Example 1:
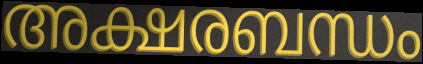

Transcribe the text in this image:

അക്ഷരബന്ധം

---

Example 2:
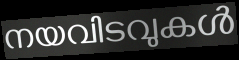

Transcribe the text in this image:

നയവിടവുകൾ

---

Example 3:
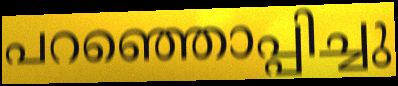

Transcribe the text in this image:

പറഞ്ഞൊപ്പിച്ചു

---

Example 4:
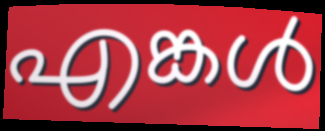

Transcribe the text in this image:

എങ്കൾ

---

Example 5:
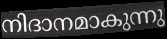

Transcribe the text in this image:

നിദാനമാകുന്നു